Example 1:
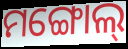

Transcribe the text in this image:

ମଙ୍ଗୋଲ୍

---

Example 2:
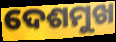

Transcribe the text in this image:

ଦେଶମୁଖ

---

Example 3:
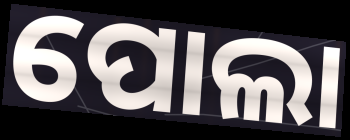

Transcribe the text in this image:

ପୋଲା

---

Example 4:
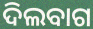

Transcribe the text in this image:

ଦିଲବାଗ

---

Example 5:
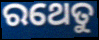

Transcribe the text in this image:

ରଥେତୁ